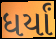
ધર્યાં